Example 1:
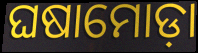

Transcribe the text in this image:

ଘଷାମୋଡ଼ା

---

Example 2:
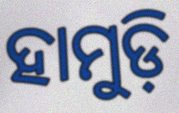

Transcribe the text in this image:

ହାମୁଡ଼ି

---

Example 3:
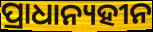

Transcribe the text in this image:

ପ୍ରାଧାନ୍ୟହୀନ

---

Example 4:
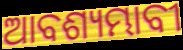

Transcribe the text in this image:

ଆବଶ୍ୟମ୍ଭାବୀ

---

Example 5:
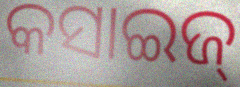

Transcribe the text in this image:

କସାଇଜ୍